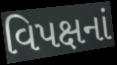
વિપક્ષનાં